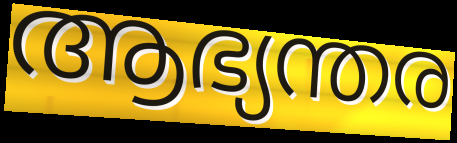
ആഭ്യന്തര